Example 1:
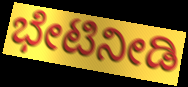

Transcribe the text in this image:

ಭೇಟಿನೀಡಿ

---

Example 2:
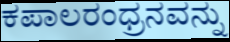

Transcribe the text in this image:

ಕಪಾಲರಂಧ್ರನವನ್ನು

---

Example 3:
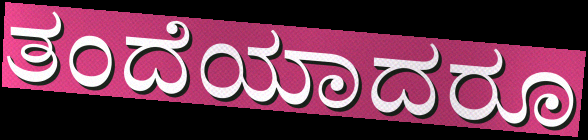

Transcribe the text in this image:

ತಂದೆಯಾದರೂ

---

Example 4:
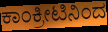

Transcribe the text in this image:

ಕಾಂಕ್ರೀಟಿನಿಂದ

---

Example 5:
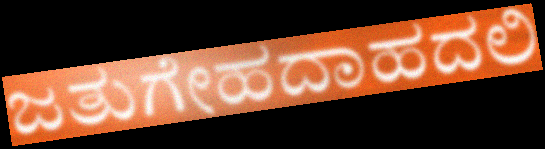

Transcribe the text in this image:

ಜತುಗೇಹದಾಹದಲಿ